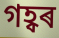
গহ্বৰ